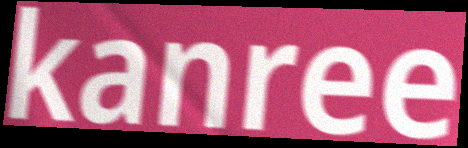
kanree